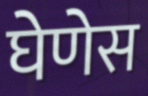
घेणेस